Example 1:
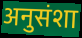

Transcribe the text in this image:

अनुसंशा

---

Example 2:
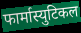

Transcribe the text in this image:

फार्मास्युटिकल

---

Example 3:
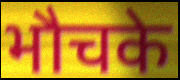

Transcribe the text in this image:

भौचके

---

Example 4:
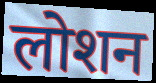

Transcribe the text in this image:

लोशन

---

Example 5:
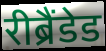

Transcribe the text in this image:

रीब्रैंडेड